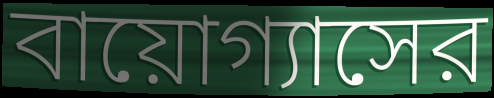
বায়োগ্যাসের